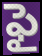
ఫై